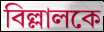
বিল্লালকে